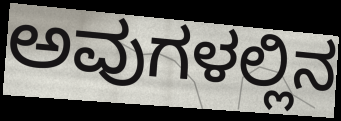
ಅವುಗಳಲ್ಲಿನ